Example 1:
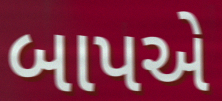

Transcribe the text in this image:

બાપએ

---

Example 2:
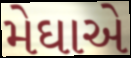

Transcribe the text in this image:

મેઘાએ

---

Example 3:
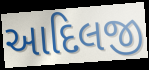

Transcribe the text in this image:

આદિલજી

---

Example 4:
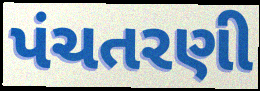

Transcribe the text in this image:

પંચતરણી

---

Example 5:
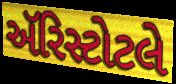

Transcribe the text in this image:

ઍરિસ્ટોટલે